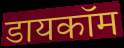
डायकॉम